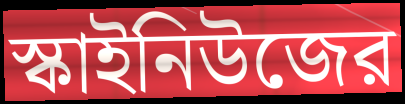
স্কাইনিউজের